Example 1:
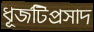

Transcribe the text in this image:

ধূর্জটিপ্রসাদ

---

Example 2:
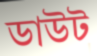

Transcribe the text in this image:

ডাউট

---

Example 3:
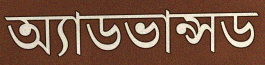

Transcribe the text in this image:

অ্যাডভান্সড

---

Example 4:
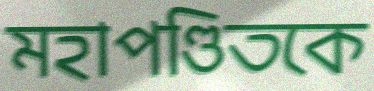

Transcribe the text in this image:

মহাপণ্ডিতকে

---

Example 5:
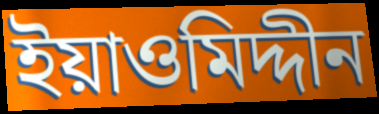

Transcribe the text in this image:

ইয়াওমিদ্দীন